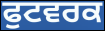
ਫੁਟਵਰਕ